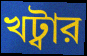
খট্বার